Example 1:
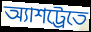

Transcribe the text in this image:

অ্যাশট্রেতে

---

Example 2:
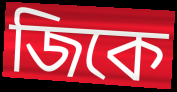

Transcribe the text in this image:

জিকে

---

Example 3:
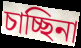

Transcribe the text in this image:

চাচ্ছিনা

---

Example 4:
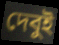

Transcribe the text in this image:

দেবুই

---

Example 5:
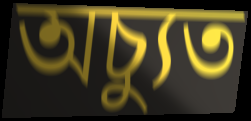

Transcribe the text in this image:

অচ্যুত